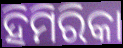
ହିମିରିକା